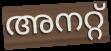
അനറ്റ്